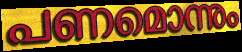
പണമൊന്നും